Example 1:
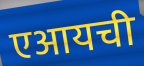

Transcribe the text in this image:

एआयची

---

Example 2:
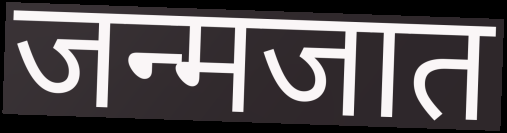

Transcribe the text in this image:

जन्मजात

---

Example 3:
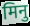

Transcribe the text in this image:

मिनु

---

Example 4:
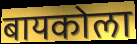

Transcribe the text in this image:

बायकोला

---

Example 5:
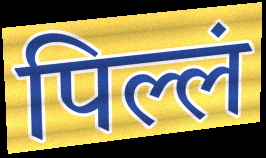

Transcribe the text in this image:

पिल्लं